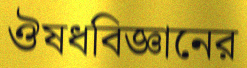
ঔষধবিজ্ঞানের